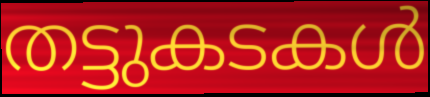
തട്ടുകടകൾ